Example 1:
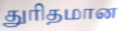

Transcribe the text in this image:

துரிதமான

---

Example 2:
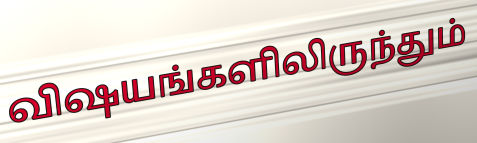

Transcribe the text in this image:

விஷயங்களிலிருந்தும்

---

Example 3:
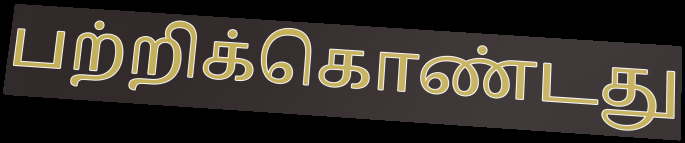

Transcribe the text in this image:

பற்றிக்கொண்டது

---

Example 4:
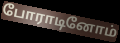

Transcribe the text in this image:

போராடினோம்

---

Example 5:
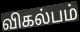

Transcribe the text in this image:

விகல்பம்